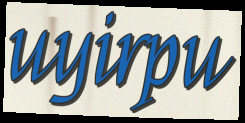
uyirpu